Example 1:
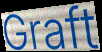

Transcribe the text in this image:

Graft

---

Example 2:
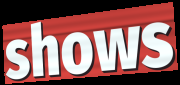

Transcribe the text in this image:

shows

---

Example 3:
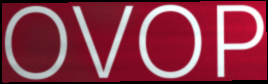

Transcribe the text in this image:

OVOP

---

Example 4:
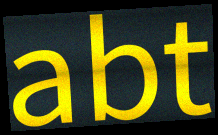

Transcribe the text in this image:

abt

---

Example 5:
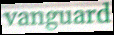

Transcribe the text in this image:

vanguard